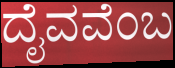
ದೈವವೆಂಬ